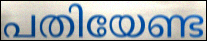
പതിയേണ്ട